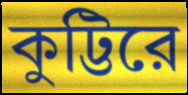
কুট্টিরে